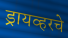
ड्रायव्हरचे